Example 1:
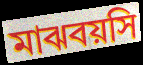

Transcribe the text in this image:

মাঝবয়সি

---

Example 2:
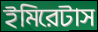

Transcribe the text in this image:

ইমিরেটাস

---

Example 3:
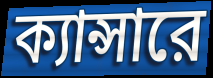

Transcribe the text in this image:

ক্যান্সারে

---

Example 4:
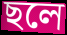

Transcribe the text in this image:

ছলে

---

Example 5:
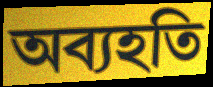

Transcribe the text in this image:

অব্যহতি